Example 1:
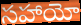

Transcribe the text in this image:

సహాయో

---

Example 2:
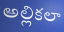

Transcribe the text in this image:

అల్లికలా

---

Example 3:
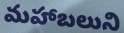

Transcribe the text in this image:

మహాబలుని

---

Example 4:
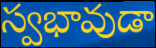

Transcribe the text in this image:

స్వభావుడా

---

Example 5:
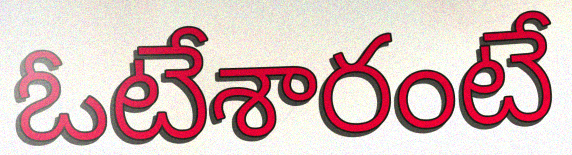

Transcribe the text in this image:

ఓటేశారంటే